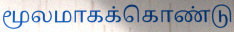
மூலமாகக்கொண்டு